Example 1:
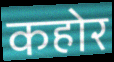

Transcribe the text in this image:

कहोर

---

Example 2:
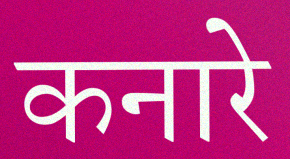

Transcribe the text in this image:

कनारे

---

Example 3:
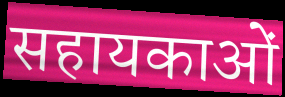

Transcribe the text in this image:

सहायकाओं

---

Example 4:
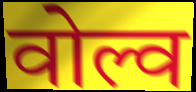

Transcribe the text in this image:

वोल्व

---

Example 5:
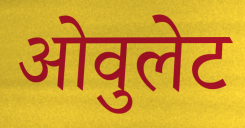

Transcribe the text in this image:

ओवुलेट